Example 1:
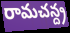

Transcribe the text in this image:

రామచన్ద్ర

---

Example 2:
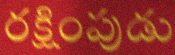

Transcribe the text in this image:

రక్షింపుడు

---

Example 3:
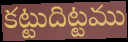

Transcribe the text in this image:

కట్టుదిట్టము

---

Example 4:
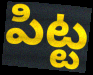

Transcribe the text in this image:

పిట్ట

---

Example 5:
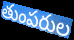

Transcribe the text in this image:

తుంపరుల